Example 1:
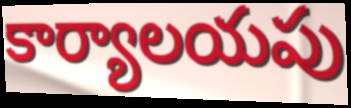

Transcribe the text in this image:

కార్యాలయపు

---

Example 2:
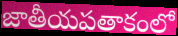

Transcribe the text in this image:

జాతీయపతాకంలో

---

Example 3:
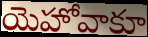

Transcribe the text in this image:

యెహోవాకూ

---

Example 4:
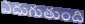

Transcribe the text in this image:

ఎదుగుతుంది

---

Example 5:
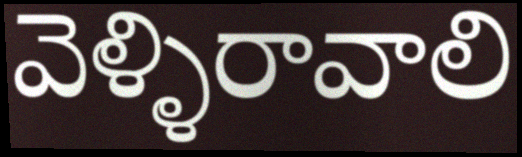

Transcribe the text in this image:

వెళ్ళిరావాలి